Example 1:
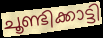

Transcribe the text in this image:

ചൂണ്ടിക്കാട്ടി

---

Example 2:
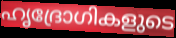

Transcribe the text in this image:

ഹൃദ്രോഗികളുടെ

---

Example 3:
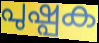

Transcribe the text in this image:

പുഷ്പക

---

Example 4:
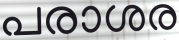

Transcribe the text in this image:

പരാശര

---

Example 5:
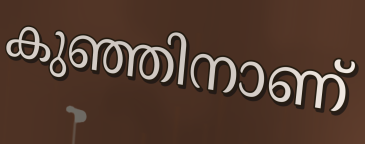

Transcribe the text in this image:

കുഞ്ഞിനാണ്